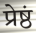
प्रेष्ठं